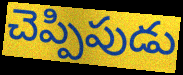
చెప్పిపుడు